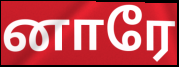
னாரே